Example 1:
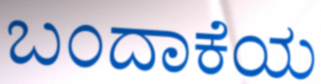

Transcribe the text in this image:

ಬಂದಾಕೆಯ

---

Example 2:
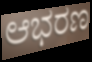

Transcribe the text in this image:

ಆಭರಣ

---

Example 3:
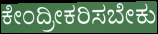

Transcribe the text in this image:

ಕೇಂದ್ರೀಕರಿಸಬೇಕು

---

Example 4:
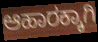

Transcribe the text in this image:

ಆಹಾರಕ್ಕಾಗಿ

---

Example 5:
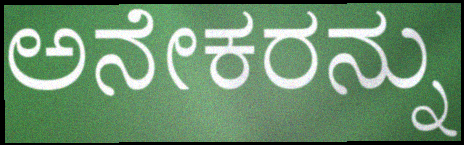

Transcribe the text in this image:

ಅನೇಕರನ್ನು